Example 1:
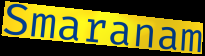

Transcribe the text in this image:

Smaranam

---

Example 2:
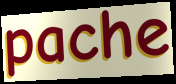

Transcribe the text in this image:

pache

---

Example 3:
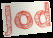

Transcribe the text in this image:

Jod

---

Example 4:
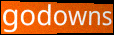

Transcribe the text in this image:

godowns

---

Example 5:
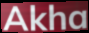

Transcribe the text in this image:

Akha